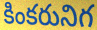
కింకరునిగ